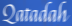
Qatadah